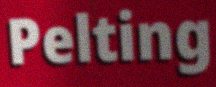
Pelting